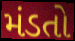
મંડતો